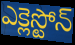
ఎక్లెస్టోన్